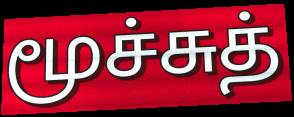
மூச்சுத்